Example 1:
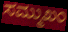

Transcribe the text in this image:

ಸಮ್ಮುಖಂ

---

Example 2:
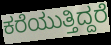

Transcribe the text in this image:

ಕರೆಯುತ್ತಿದ್ದರೆ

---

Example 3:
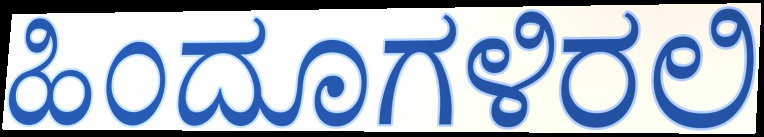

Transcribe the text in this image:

ಹಿಂದೂಗಳಿರಲಿ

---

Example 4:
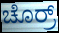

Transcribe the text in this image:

ಚೊರ್ರ್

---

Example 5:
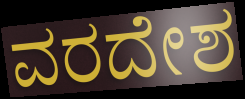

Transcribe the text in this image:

ವರದೇಶ